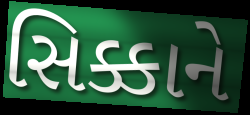
સિક્કાને